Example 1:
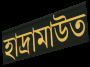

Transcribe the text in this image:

হাদ্রামাউত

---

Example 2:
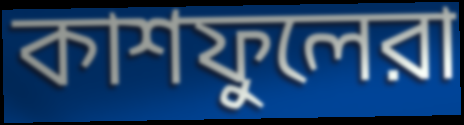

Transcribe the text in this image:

কাশফুলেরা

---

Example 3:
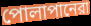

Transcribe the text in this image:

পোলাপানেরা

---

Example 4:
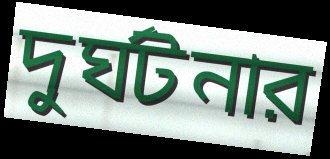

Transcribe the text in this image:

দুর্ঘটনার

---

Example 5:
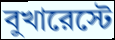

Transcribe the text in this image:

বুখারেস্টে